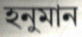
হনুমান